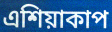
এশিয়াকাপ